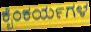
ಕೈಂಕರ್ಯಗಳ